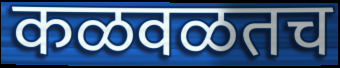
कळवळतच